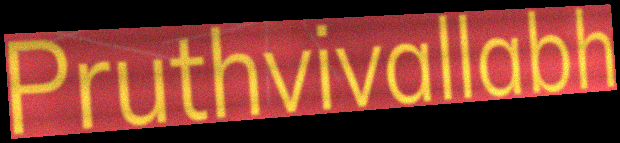
Pruthvivallabh